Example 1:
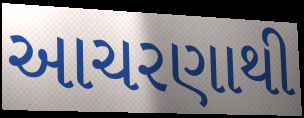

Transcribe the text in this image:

આચરણાથી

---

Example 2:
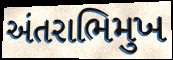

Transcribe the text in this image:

અંતરાભિમુખ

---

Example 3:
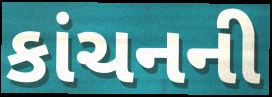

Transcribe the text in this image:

કાંચનની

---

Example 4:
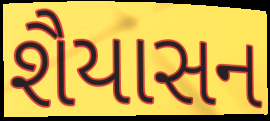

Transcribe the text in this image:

શૈયાસન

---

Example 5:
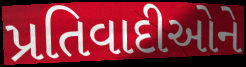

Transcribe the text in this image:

પ્રતિવાદીઓને